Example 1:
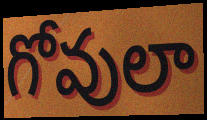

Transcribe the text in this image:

గోవులా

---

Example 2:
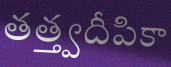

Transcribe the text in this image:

తత్త్వదీపికా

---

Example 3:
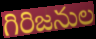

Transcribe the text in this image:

గిరిజనుల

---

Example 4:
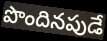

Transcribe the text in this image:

పొందినపుడే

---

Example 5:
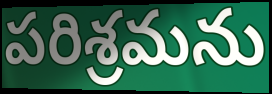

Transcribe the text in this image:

పరిశ్రమను